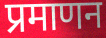
प्रमाणन